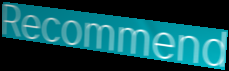
Recommend